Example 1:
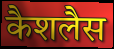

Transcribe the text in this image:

कैशलैस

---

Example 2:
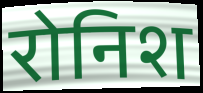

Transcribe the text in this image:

रोनिश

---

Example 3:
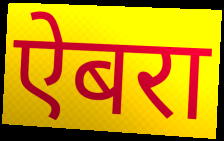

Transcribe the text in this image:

ऐबरा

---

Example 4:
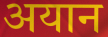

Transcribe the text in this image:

अयान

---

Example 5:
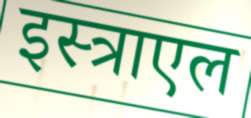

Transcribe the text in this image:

इस्त्राएल